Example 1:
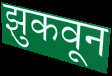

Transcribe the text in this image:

झुकवून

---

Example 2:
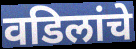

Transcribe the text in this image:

वडिलांचे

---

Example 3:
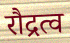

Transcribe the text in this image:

रौद्रत्व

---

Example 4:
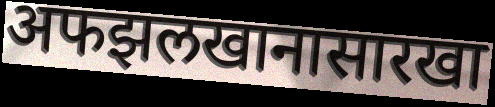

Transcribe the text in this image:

अफझलखानासारखा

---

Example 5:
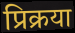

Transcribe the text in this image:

प्रिक्रया